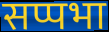
सप्पभा